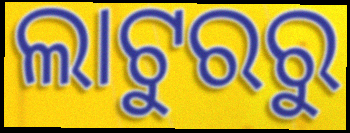
ଲାଟୁରରୁ